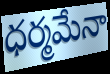
ధర్మమేనా